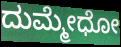
ದುಮ್ಮೇಧೋ